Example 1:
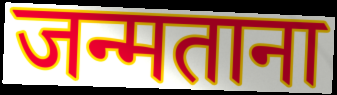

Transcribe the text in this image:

जन्मताना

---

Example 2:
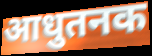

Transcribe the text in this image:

आधुतनक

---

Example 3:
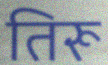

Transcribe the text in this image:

तिरू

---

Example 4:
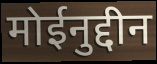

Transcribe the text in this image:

मोईनुद्दीन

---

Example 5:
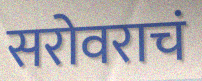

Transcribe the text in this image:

सरोवराचं